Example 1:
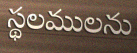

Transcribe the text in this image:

స్థలములను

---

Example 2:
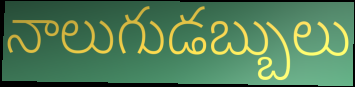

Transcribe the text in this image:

నాలుగుడబ్బులు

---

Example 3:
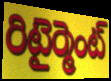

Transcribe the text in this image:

రిటైర్మెంట్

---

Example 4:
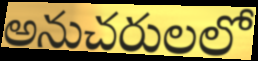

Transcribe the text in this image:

అనుచరులలో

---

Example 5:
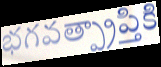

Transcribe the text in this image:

భగవత్ప్రాప్తికి